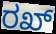
ರಖ್